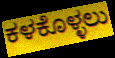
ಕಳಕೊಳ್ಳಲು